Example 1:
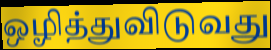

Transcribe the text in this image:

ஒழித்துவிடுவது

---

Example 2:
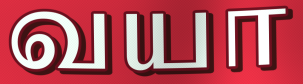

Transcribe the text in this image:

வயா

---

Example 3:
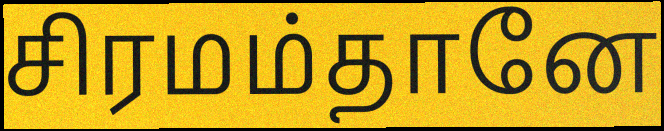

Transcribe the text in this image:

சிரமம்தானே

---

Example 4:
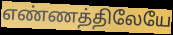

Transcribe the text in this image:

எண்ணத்திலேயே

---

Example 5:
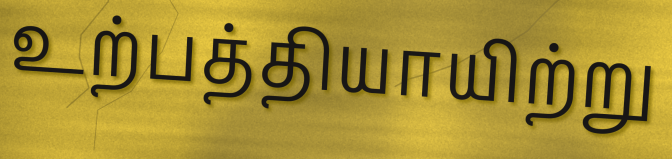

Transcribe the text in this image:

உற்பத்தியாயிற்று